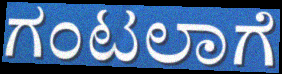
ಗಂಟಲಾಗೆ